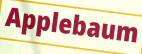
Applebaum